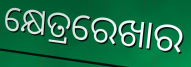
କ୍ଷେତ୍ରରେଖାର